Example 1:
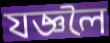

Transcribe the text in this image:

যজ্ঞলৈ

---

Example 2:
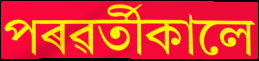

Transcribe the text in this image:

পৰৱৰ্তীকালে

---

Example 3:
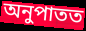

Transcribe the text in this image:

অনুপাতত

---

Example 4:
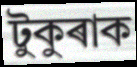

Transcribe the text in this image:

টুকুৰাক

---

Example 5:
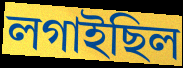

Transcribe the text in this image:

লগাইছিল